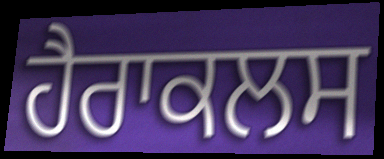
ਹੈਰਾਕਲਸ